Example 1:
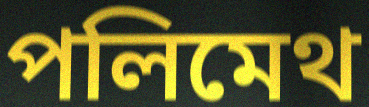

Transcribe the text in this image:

পলিমেথ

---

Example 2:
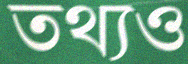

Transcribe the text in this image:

তথ্যও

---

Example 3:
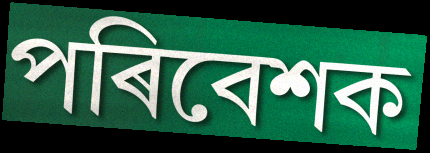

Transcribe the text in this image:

পৰিবেশক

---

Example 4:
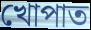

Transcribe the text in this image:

খোপাত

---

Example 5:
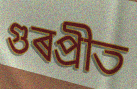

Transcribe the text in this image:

গুৰপ্ৰীত